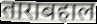
ताराबहाल